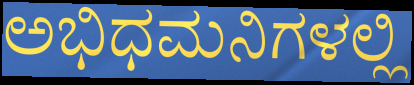
ಅಭಿಧಮನಿಗಳಲ್ಲಿ